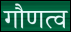
गौणत्व